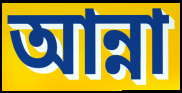
আন্না